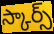
స్కార్స్